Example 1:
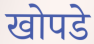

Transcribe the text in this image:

खोपडे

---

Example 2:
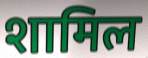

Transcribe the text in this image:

शामिल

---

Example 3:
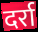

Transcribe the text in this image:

दर्रा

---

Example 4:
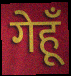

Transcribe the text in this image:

गेहूँ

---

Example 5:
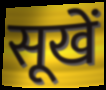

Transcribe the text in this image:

सूखें